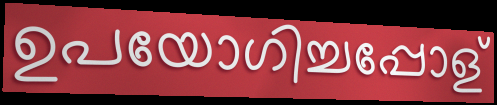
ഉപയോഗിച്ചപ്പോള്